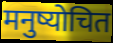
मनुष्योचित